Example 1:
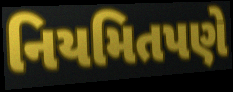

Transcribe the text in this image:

નિયમિતપણે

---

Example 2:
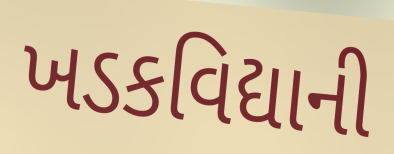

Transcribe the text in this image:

ખડકવિદ્યાની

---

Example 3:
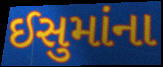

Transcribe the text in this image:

ઈસુમાંના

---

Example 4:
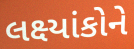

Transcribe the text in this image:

લક્ષ્યાંકોને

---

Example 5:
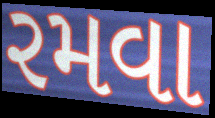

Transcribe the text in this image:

રમવા